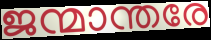
ജന്മാന്തരേ